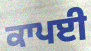
ਕਾਪਈ